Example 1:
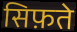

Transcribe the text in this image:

सिफ़ते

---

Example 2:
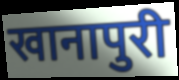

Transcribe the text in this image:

खानापुरी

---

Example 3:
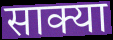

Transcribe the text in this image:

साक्या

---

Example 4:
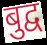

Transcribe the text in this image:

बुद्व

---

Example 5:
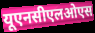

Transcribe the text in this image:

यूएनसीएलओएस